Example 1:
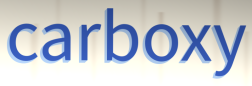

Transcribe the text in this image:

carboxy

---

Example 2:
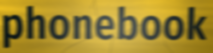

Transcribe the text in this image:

phonebook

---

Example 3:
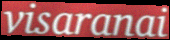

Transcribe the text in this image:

visaranai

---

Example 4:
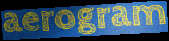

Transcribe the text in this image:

aerogram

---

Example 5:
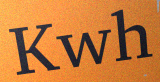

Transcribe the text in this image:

Kwh